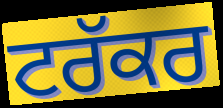
ਟਰੱਕਰ